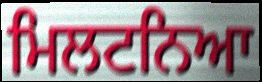
ਮਿਲਟਨਿਆ